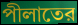
পীলাতের